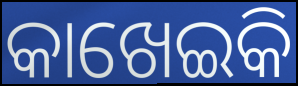
କାଖେଇକି